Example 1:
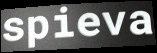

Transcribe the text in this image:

spieva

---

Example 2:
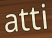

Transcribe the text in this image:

atti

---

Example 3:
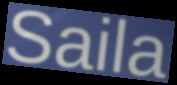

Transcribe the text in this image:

Saila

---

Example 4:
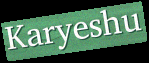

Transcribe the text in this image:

Karyeshu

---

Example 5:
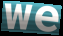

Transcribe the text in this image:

we